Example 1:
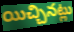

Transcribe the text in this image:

యిచ్చినట్లు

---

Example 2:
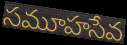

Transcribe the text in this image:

సమూహసేవ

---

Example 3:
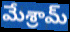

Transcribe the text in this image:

మేశ్రామ్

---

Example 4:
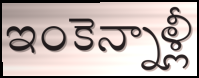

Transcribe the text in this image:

ఇంకెన్నాళ్లీ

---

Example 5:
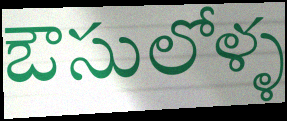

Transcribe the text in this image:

ఔసులోళ్ళ